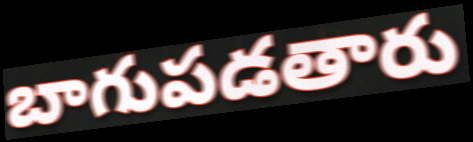
బాగుపడతారు